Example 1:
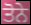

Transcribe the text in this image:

ਤੋਨੇ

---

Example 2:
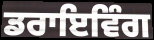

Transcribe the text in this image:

ਡਰਾਇਵਿੰਗ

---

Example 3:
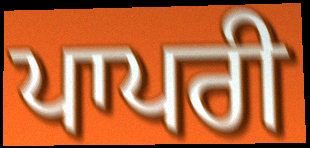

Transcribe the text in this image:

ਪਾਪਰੀ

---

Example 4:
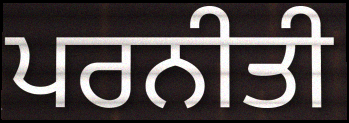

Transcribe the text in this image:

ਪਰਨੀਤੀ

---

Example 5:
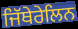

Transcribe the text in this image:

ਜਿੱਥੇਰੇਲਿਨ